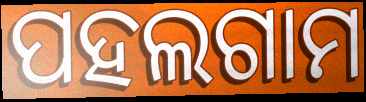
ପହଲଗାମ